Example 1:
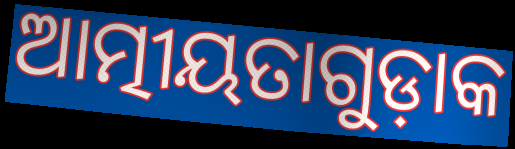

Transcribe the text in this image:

ଆତ୍ମୀୟତାଗୁଡ଼ାକ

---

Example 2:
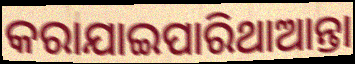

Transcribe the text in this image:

କରାଯାଇପାରିଥାଆନ୍ତା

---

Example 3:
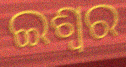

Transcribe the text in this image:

ଇଶ୍ଵର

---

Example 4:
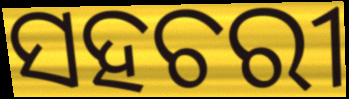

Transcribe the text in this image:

ସହଚରୀ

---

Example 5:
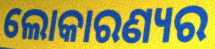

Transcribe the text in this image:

ଲୋକାରଣ୍ୟର